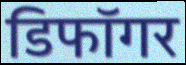
डिफॉगर